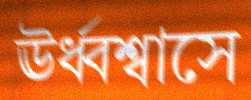
ঊর্ধ্বশ্বাসে